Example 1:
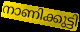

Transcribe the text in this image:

നാണിക്കുട്ടി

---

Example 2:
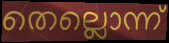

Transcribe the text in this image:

തെല്ലൊന്ന്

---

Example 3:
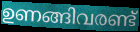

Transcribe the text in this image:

ഉണങ്ങിവരണ്ട്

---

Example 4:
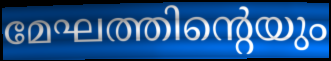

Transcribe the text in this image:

മേഘത്തിന്റെയും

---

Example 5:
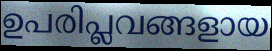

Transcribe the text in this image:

ഉപരിപ്ലവങ്ങളായ